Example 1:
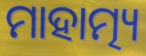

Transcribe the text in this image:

ମାହାତ୍ମ୍ୟ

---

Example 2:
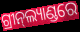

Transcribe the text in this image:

ଗ୍ରୀନ୍‍ଲ୍ୟାଣ୍ଡରେ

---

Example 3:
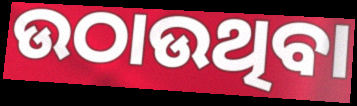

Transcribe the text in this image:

ଉଠାଉଥିବା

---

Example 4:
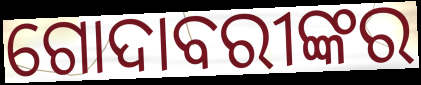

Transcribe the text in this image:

ଗୋଦାବରୀଙ୍କର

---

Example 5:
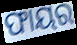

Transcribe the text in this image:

ଫାୟର